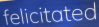
felicitated